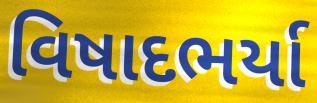
વિષાદભર્યા